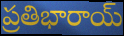
ప్రతిభారాయ్